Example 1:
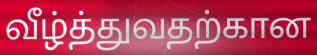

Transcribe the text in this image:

வீழ்த்துவதற்கான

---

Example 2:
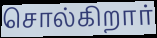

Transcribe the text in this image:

சொல்கிறார்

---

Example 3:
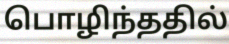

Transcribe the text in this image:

பொழிந்ததில்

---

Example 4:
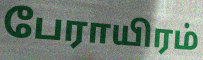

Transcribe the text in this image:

பேராயிரம்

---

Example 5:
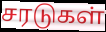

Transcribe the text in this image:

சரடுகள்